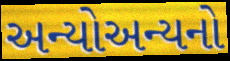
અન્યોઅન્યનો